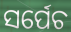
ସର୍ପେଚ